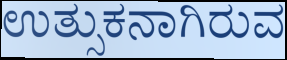
ಉತ್ಸುಕನಾಗಿರುವ